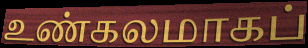
உண்கலமாகப்